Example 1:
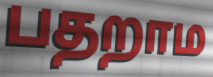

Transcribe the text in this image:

பதறாம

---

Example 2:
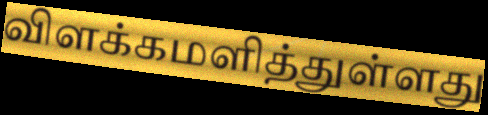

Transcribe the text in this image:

விளக்கமளித்துள்ளது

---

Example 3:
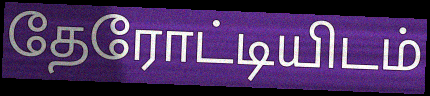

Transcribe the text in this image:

தேரோட்டியிடம்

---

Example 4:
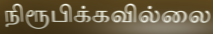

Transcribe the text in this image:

நிரூபிக்கவில்லை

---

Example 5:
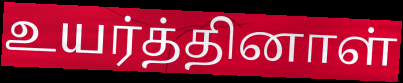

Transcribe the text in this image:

உயர்த்தினாள்